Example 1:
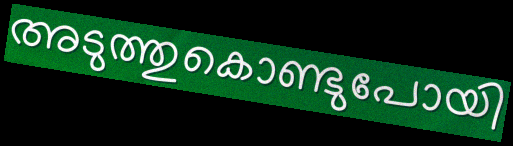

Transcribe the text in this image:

അടുത്തുകൊണ്ടുപോയി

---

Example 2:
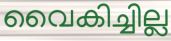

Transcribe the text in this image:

വൈകിച്ചില്ല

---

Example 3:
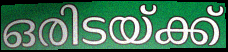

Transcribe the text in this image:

ഒരിടയ്ക്ക്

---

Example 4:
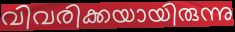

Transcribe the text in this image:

വിവരിക്കയായിരുന്നു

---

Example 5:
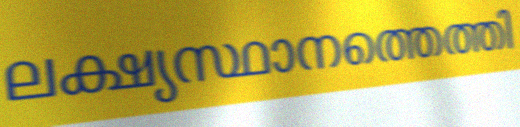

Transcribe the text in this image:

ലക്ഷ്യസ്ഥാനത്തെത്തി